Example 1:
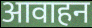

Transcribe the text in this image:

आवाहन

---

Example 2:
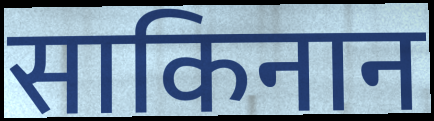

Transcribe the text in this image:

साकिनान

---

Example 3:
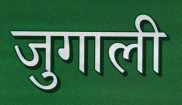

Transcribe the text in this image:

जुगाली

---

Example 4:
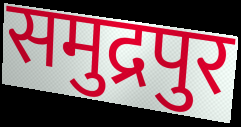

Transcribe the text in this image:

समुद्रपुर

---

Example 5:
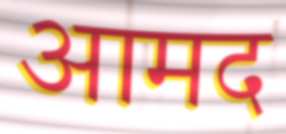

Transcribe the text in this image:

आमद